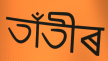
তাঁতীৰ